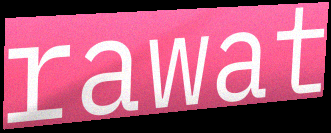
rawat